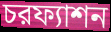
চরফ্যাশন